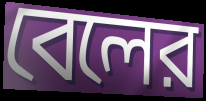
বেলের